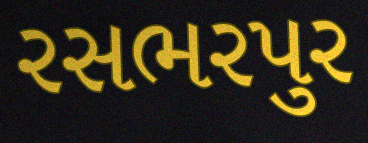
રસભરપુર